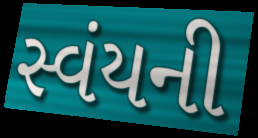
સ્વંયની